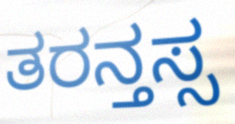
ತರನ್ತಸ್ಸ